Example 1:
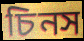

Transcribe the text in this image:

চিনস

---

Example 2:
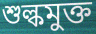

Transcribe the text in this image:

শুল্কমুক্ত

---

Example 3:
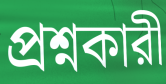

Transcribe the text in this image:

প্রশ্নকারী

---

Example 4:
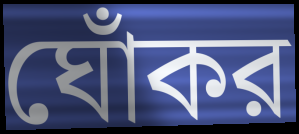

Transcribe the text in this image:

ঘোঁকর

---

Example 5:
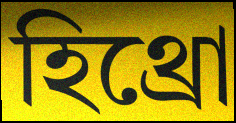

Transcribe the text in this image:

হিথ্রো